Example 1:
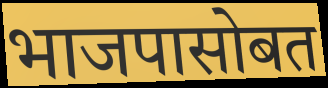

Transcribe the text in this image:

भाजपासोबत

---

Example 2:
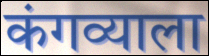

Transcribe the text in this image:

कंगव्याला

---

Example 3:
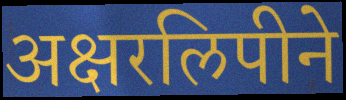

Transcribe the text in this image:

अक्षरलिपीने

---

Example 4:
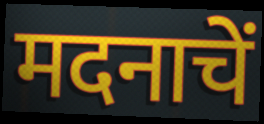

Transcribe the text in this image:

मदनाचें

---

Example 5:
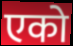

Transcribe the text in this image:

एको